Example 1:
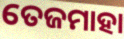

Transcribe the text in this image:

ତେଜମାହା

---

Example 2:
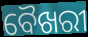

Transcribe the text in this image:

ବୈଖରୀ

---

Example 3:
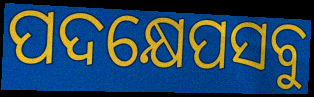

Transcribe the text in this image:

ପଦକ୍ଷେପସବୁ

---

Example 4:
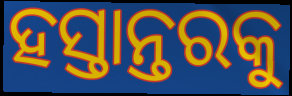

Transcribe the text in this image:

ହସ୍ତାନ୍ତରକୁ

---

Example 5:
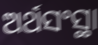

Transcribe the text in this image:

ଅର୍ଥସଂସ୍ଥା